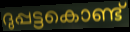
ദുപ്പട്ടകൊണ്ട്